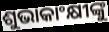
ଶୁଭାକାଂକ୍ଷୀଙ୍କୁ